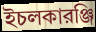
ইচলকারঞ্জি